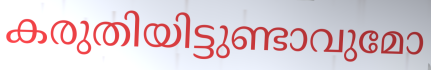
കരുതിയിട്ടുണ്ടാവുമോ